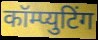
कॉम्प्युटिंग